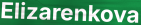
Elizarenkova